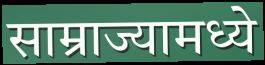
साम्राज्यामध्ये